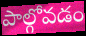
పాల్గోవడం